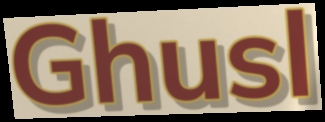
Ghusl